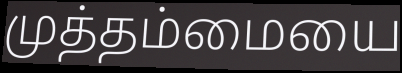
முத்தம்மையை